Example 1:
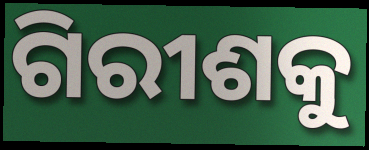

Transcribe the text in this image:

ଗିରୀଶକୁ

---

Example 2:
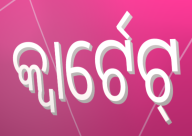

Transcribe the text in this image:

କ୍ୱାର୍ଟେଟ୍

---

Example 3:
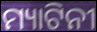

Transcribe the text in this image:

ମ୍ୟାଟିନୀ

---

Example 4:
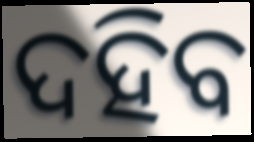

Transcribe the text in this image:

ଦହିବ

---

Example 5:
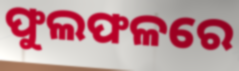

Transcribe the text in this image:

ଫୁଲଫଳରେ